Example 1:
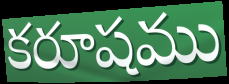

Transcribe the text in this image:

కరూషము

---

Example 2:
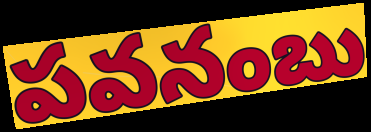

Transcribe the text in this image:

పవనంబు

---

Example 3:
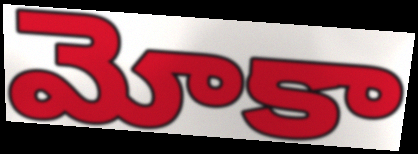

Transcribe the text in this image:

మోకా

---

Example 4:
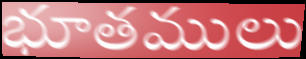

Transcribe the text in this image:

భూతములు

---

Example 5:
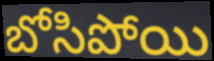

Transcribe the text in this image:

బోసిపోయి